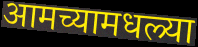
आमच्यामधल्या